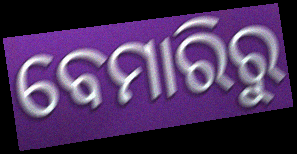
ବେମାରିରୁ